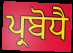
ਪ੍ਰਬੋਧੈ